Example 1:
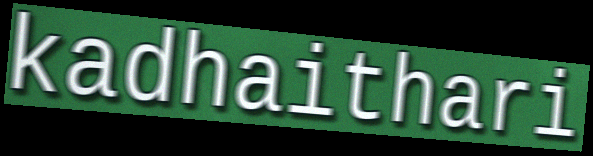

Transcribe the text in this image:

kadhaithari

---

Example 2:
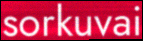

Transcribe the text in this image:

sorkuvai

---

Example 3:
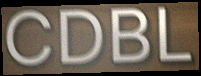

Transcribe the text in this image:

CDBL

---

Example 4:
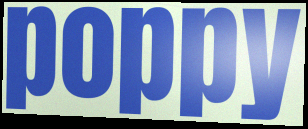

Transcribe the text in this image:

poppy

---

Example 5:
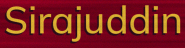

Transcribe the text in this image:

Sirajuddin